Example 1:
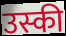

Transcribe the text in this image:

उस्‍की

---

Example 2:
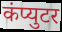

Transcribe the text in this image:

कंप्युटर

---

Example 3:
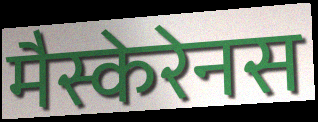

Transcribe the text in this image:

मैस्केरेनस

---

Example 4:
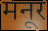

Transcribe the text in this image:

मनूर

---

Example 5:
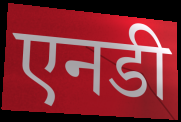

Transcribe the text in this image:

एनडी